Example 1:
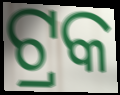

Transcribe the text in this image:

ଟ୍ରକ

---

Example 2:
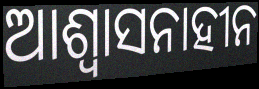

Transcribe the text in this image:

ଆଶ୍ୱାସନାହୀନ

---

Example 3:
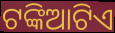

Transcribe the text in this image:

ଟଙ୍କିଆଟିଏ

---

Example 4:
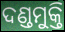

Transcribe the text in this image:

ଦଣ୍ଡମୁକ୍ତି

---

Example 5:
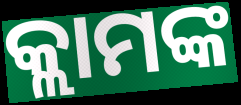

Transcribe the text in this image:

କ୍ଲାମଙ୍କ